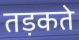
तड़कते